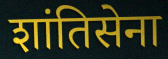
शांतिसेना